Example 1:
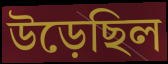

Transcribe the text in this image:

উড়েছিল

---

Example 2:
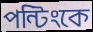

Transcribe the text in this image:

পন্টিংকে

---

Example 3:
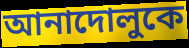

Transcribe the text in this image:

আনাদোলুকে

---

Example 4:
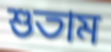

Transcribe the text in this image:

শুতাম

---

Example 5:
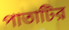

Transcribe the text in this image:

পাতাটির